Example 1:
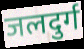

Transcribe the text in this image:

जलदुर्ग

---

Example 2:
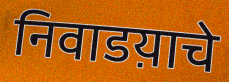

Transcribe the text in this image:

निवाडय़ाचे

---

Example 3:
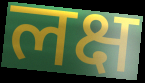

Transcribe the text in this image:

लक्ष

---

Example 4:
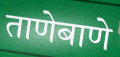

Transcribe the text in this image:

ताणेबाणे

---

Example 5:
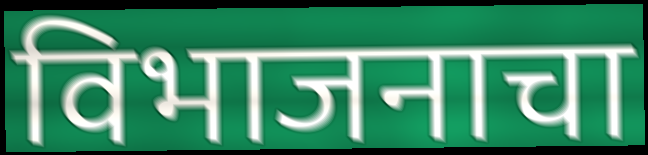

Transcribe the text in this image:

विभाजनाचा